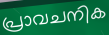
പ്രാവചനിക